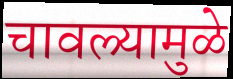
चावल्यामुळे